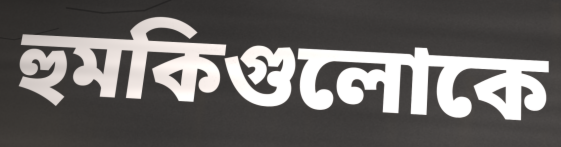
হুমকিগুলোকে